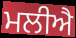
ਮਲੀਐ